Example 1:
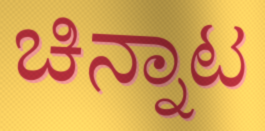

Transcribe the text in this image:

ಚಿನ್ನಾಟ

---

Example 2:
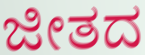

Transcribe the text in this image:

ಜೀತದ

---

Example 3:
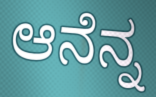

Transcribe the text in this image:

ಆನೆನ್ನ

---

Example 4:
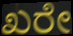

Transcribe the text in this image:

ಖರೇ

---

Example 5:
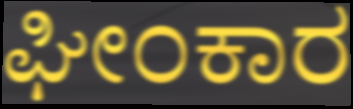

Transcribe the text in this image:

ಘೀಂಕಾರ